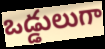
ఒడ్డులుగా